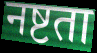
नष्टता